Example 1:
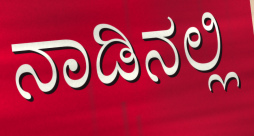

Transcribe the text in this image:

ನಾಡಿನಲ್ಲಿ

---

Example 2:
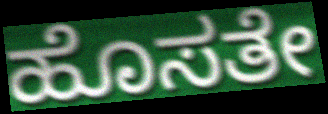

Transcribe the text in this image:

ಹೊಸತೇ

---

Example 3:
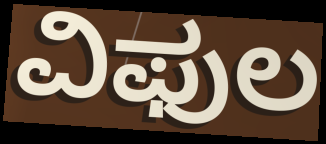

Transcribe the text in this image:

ವಿಫುಲ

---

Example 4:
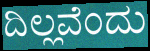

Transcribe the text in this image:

ದಿಲ್ಲವೆಂದು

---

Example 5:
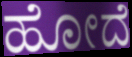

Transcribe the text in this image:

ಹೋದೆ